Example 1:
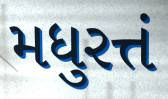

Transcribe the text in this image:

મધુરત્તં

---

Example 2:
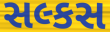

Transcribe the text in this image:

સલ્કસ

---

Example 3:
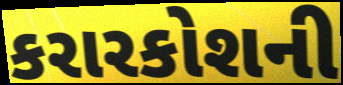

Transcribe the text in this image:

કરારકોશની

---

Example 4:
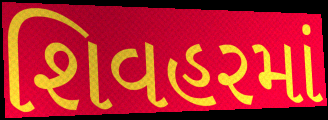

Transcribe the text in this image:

શિવહરમાં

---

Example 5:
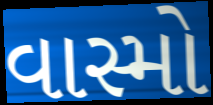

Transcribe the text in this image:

વાસ્મો